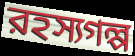
রহস্যগল্প